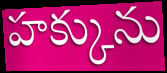
హక్కును